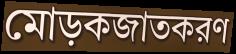
মোড়কজাতকরণ